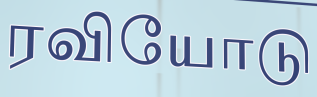
ரவியோடு